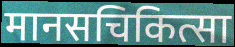
मानसचिकित्सा